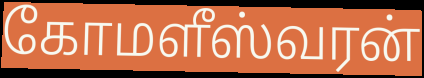
கோமளீஸ்வரன்